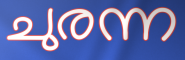
ചുരന്ന